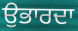
ਉਭਾਰਦਾ